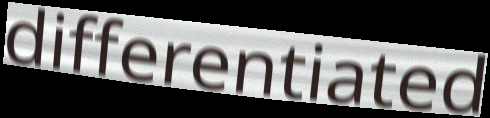
differentiated